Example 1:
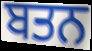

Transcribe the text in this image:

ਬਤਨ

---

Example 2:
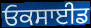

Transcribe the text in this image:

ਓਕਸਾਈਡ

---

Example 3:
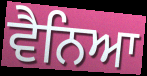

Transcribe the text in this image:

ਵੈਨਿਆ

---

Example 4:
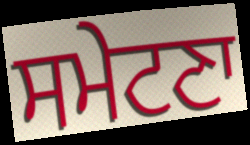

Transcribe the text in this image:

ਸਮੇਟਣਾ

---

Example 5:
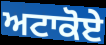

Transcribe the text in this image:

ਅਟਾਕੋਏ